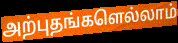
அற்புதங்களெல்லாம்